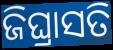
ଜିଘ୍ରାସତି